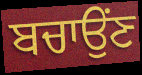
ਬਚਾਉਂਣ